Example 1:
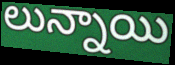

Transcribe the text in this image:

లున్నాయి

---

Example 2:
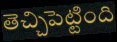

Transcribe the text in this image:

తెచ్చిపెట్టింది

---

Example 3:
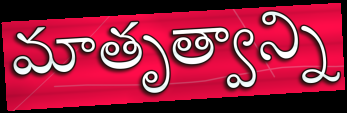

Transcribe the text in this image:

మాతృత్వాన్ని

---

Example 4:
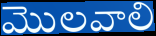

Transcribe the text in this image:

మొలవాలి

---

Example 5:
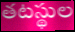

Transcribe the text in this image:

తటస్థుల